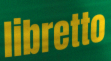
libretto